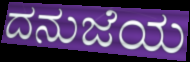
ದನುಜೆಯ